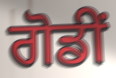
ਗੋਡੀਂ